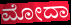
ಮೋದಾ